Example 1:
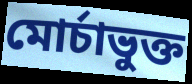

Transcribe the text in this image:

মোর্চাভুক্ত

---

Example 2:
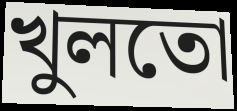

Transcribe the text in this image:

খুলতো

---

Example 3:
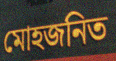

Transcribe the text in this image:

মোহজনিত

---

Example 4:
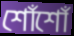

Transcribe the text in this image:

শোঁশোঁ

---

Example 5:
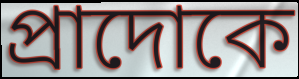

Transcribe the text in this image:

প্রাদোকে